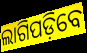
ଲାଗିପଡ଼ିବେ